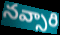
నవ్సారి